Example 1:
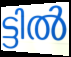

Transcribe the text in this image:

ട്ടിൽ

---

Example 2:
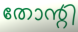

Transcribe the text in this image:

തോന്റി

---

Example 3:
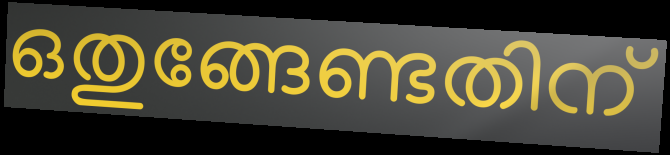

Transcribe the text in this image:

ഒതുങ്ങേണ്ടതിന്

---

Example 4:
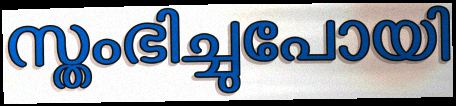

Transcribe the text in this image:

സ്തംഭിച്ചുപോയി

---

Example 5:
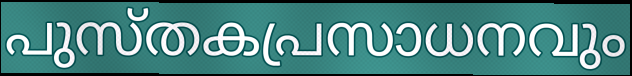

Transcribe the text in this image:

പുസ്തകപ്രസാധനവും